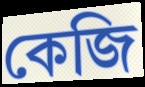
কেজি